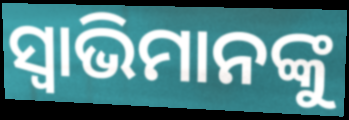
ସ୍ୱାଭିମାନଙ୍କୁ